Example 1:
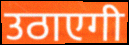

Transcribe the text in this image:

उठाएगी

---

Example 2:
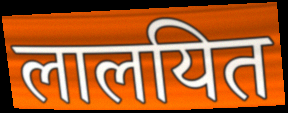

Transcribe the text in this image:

लालयित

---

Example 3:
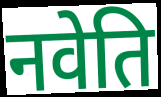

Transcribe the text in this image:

नवेति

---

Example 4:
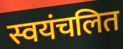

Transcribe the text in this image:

स्वयंचलित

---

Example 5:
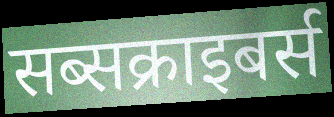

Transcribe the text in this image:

सब्सक्राइबर्स